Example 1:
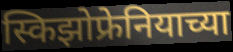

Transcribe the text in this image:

स्किझोफ्रेनियाच्या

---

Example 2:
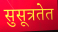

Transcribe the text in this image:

सुसूत्रतेत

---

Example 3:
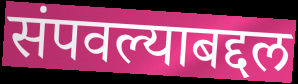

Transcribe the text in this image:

संपवल्याबद्दल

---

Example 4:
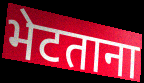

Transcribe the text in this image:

भेटताना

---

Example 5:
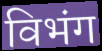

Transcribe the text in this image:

विभंग